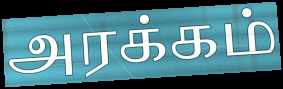
அரக்கம்